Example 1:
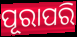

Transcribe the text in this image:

ପୂରାପରି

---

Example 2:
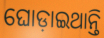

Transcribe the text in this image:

ଘୋଡ଼ାଇଥାନ୍ତି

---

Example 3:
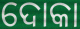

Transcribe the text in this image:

ଦୋକା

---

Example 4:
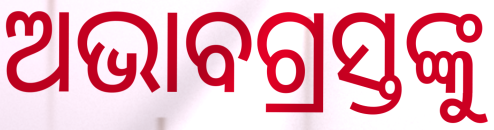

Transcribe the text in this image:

ଅଭାବଗ୍ରସ୍ତଙ୍କୁ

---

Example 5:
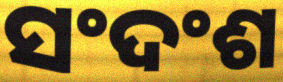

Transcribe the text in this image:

ସଂଦଂଶ